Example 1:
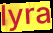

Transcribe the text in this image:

lyra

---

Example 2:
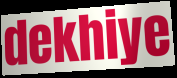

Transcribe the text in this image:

dekhiye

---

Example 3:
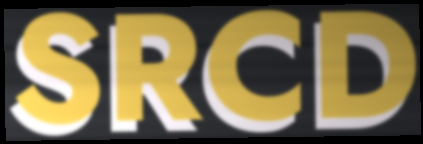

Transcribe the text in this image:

SRCD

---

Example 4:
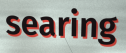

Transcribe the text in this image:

searing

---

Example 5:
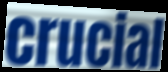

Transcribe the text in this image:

crucial